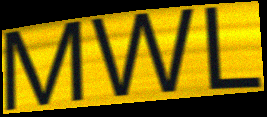
MWL